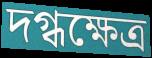
দগ্ধক্ষেত্র